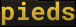
pieds